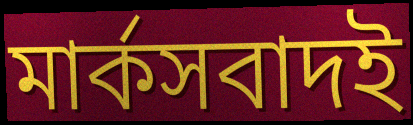
মার্কসবাদই